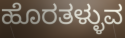
ಹೊರತಳ್ಳುವ